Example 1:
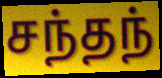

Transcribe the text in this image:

சந்தந்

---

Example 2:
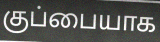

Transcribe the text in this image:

குப்பையாக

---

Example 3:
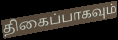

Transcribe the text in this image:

திகைப்பாகவும்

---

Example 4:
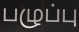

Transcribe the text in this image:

பழுப்பு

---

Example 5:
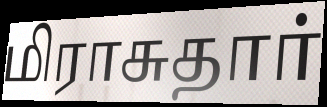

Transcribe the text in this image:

மிராசுதார்